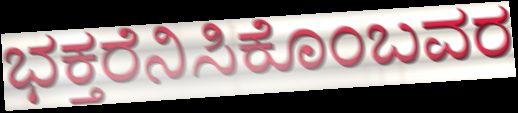
ಭಕ್ತರೆನಿಸಿಕೊಂಬವರ